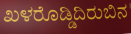
ಖಳರೊಡ್ಡಿದಿರುಬಿನ